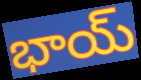
భాయ్